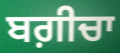
ਬਗ਼ੀਚਾ